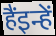
हैंइन्हें